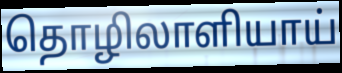
தொழிலாளியாய்